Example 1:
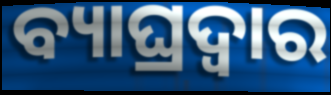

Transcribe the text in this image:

ବ୍ୟାଘ୍ରଦ୍ଵାର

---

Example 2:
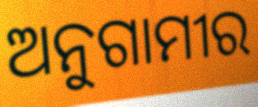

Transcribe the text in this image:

ଅନୁଗାମୀର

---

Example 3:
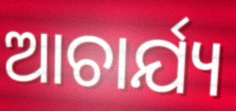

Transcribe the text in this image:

ଆଚାର୍ଯ୍ୟ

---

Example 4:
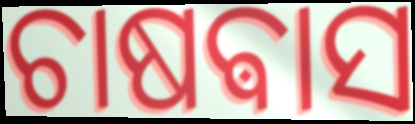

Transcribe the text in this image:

ଚାଷଵାସ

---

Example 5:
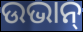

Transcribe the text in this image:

ଉଭାନ୍